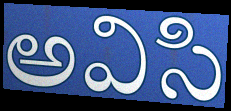
అవిసి